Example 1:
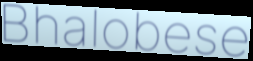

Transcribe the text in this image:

Bhalobese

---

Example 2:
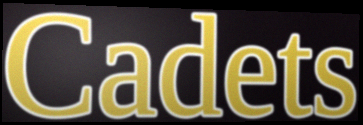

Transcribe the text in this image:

Cadets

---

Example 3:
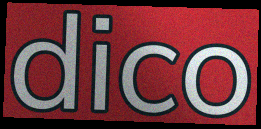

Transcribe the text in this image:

dico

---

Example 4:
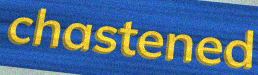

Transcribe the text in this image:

chastened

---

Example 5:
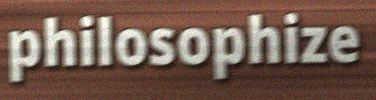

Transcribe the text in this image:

philosophize